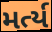
મર્ત્ય